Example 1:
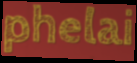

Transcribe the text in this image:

phelai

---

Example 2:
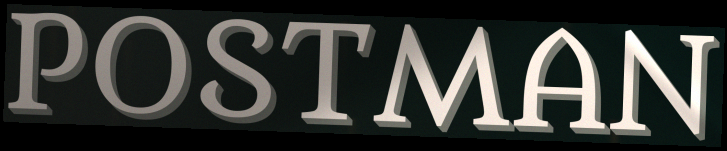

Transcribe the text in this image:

POSTMAN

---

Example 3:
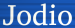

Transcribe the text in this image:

Jodio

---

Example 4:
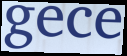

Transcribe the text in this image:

gece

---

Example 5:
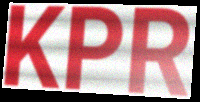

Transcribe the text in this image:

KPR